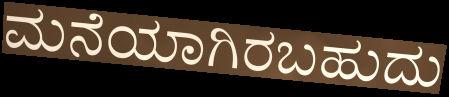
ಮನೆಯಾಗಿರಬಹುದು